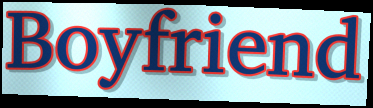
Boyfriend